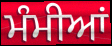
ਮੰਮੀਆਂ